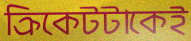
ক্রিকেটটাকেই